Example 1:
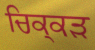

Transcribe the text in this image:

ਚਿਕ੍ਕੜ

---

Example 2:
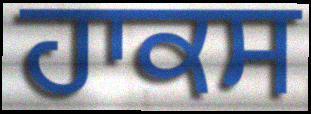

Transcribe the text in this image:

ਹਾਕਸ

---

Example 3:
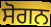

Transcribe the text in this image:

ਸੋਗਨ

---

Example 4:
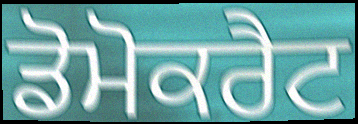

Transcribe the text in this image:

ਡੋਮੋਕਰੈਟ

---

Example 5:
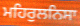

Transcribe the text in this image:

ਮਹਿਰੁਲਨਿਸਾ